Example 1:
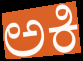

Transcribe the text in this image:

ಅಕಿ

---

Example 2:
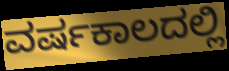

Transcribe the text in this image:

ವರ್ಷಕಾಲದಲ್ಲಿ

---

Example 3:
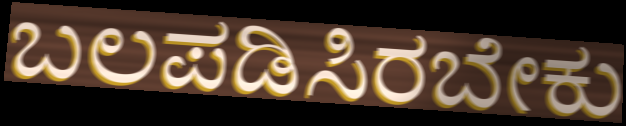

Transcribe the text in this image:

ಬಲಪಡಿಸಿರಬೇಕು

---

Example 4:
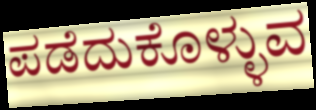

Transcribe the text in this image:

ಪಡೆದುಕೊಳ್ಳುವ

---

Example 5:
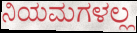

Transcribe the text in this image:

ನಿಯಮಗಳಲ್ಲ